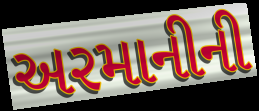
અરમાનીની